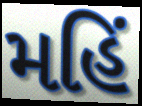
મહિં